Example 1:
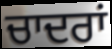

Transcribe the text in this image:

ਚਾਦਰਾਂ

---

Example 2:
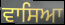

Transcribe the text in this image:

ਵਾਸਿਆ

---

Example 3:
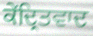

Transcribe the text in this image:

ਕੇਂਦ੍ਰਿਤਵਾਦ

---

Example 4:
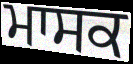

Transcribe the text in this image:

ਮਾਸਕ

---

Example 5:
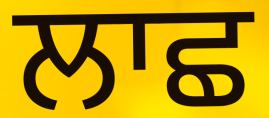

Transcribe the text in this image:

ਲਾਛ